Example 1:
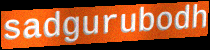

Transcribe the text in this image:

sadgurubodh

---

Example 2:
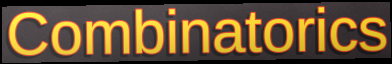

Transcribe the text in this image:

Combinatorics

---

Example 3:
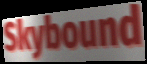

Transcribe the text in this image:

Skybound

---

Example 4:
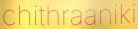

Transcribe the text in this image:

chithraaniki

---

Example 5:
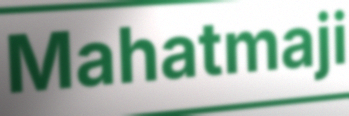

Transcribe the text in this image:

Mahatmaji